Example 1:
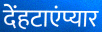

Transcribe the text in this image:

देंहटाएंप्यार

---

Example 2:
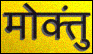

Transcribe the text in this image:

मोक्तुं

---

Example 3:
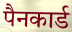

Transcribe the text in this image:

पैनकार्ड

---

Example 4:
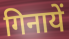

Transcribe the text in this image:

गिनायें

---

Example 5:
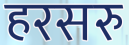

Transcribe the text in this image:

हरसरु